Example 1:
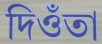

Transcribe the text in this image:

দিওঁতা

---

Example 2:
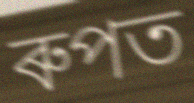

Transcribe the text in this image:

ৰুপত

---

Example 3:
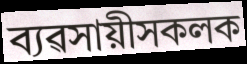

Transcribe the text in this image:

ব্যৱসায়ীসকলক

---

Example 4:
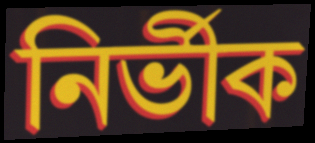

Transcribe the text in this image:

নিৰ্ভীক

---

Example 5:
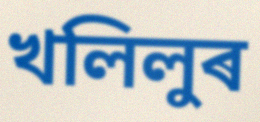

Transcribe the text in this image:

খলিলুৰ